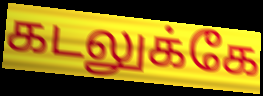
கடலுக்கே